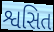
શ્વસિત